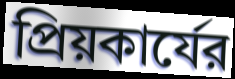
প্রিয়কার্যের